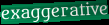
exaggerative